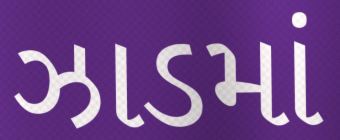
ઝાડમાં